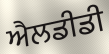
ਐਲਡੀਡੀ